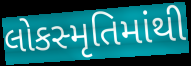
લોકસ્મૃતિમાંથી